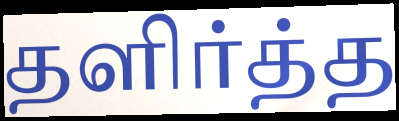
தளிர்த்த